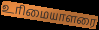
உரிமையாளரை